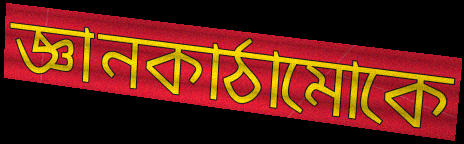
জ্ঞানকাঠামোকে